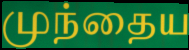
முந்தைய